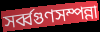
সর্ব্বগুণসম্পন্না